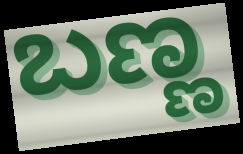
ಬಣ್ಣ